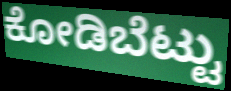
ಕೋಡಿಬೆಟ್ಟು